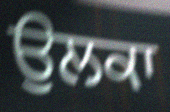
ਉਲਕਾ